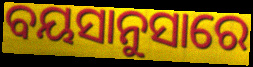
ବୟସାନୁସାରେ